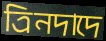
ত্রিনদাদে